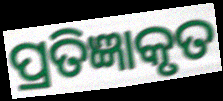
ପ୍ରତିଜ୍ଞାକୃତ